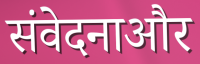
संवेदनाऔर